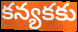
కన్యకకు